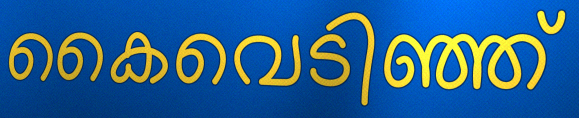
കൈവെടിഞ്ഞ്